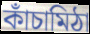
কাঁচামিঠা